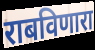
राबविणारा